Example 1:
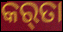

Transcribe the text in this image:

କର୍‌ତା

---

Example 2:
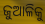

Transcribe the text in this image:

ଜୁଆଳିକୁ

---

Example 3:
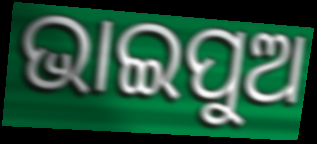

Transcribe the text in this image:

ଭାଇପୁଅ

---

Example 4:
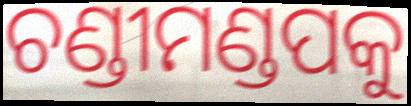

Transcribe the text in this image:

ଚଣ୍ଡୀମଣ୍ଡପକୁ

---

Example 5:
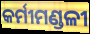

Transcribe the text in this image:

କର୍ମୀମଣ୍ଡଳୀ